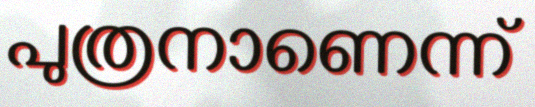
പുത്രനാണെന്ന്